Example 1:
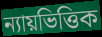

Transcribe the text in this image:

ন্যায়ভিত্তিক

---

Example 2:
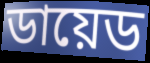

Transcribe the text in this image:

ডায়েড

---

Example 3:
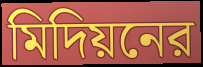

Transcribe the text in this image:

মিদিয়নের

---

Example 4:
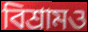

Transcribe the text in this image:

বিশ্রামও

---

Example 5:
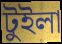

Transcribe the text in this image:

টুইলা